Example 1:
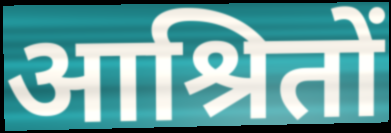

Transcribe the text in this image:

आश्रितों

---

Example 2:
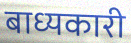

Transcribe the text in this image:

बाध्‍यकारी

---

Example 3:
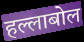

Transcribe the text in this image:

हल्लाबोल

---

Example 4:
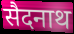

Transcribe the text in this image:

सैदनाथ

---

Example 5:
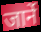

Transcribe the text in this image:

जार्ने